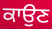
ਕਾਉਣ